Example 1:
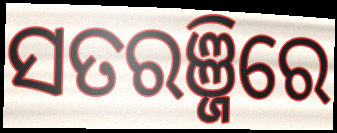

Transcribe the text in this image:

ସତରଞ୍ଜିରେ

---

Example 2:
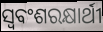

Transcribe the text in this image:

ସ୍ବବଂଶରକ୍ଷାର୍ଥୀ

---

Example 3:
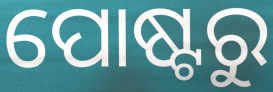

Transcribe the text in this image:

ପୋଷ୍ଟରୁ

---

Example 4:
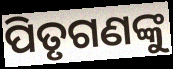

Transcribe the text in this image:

ପିତୃଗଣଙ୍କୁ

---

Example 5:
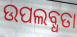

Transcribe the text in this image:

ଉପଲବ୍ଧତା